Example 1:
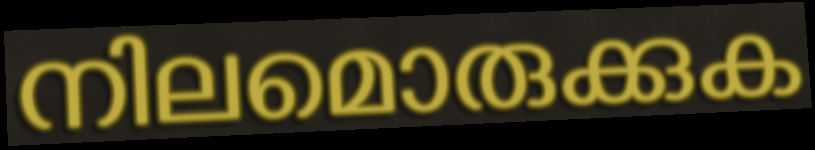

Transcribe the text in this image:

നിലമൊരുക്കുക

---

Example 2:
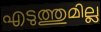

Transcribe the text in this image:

എടുത്തുമില്ല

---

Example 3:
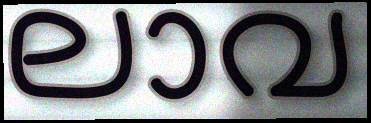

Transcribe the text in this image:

ലാവ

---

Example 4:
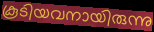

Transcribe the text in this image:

കൂടിയവനായിരുന്നു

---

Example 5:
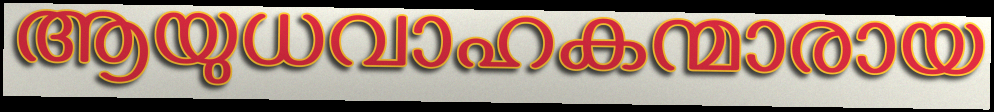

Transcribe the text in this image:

ആയുധവാഹകന്മാരായ